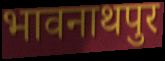
भावनाथपुर